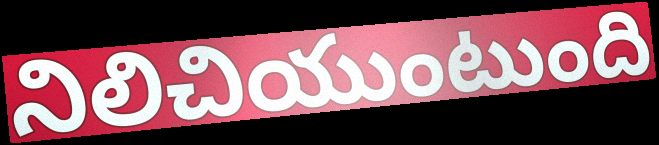
నిలిచియుంటుంది